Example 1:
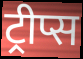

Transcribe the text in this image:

ट्रीप्स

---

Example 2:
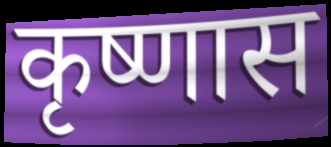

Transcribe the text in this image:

कृष्णास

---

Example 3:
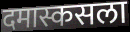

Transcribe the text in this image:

दमास्कसला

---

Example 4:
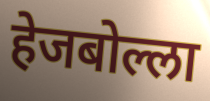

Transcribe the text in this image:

हेजबोल्ला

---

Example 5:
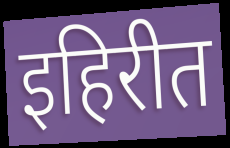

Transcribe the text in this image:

इहिरीत